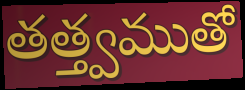
తత్త్వముతో